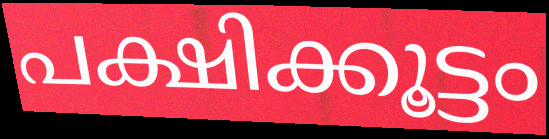
പക്ഷിക്കൂട്ടം